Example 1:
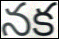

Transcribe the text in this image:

నక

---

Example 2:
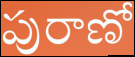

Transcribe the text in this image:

పురాణో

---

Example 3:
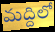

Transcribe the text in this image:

మద్దిలో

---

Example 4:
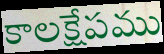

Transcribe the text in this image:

కాలక్షేపము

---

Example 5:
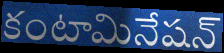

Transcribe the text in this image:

కంటామినేషన్